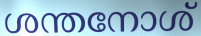
ശന്തനോശ്